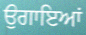
ਉਗਾਇਆਂ